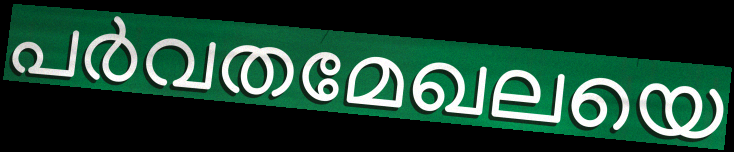
പർവതമേഖലയെ